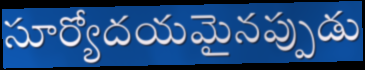
సూర్యోదయమైనప్పుడు